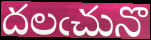
దలఁచునొ